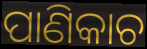
ପାଣିକାଚ